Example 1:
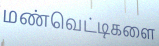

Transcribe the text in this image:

மண்வெட்டிகளை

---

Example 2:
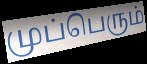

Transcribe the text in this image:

முப்பெரும்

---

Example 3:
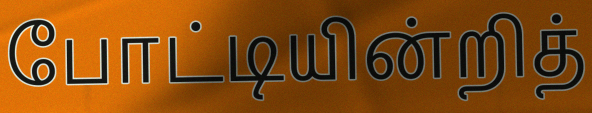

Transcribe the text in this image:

போட்டியின்றித்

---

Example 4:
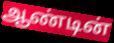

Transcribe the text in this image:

ஆண்டின்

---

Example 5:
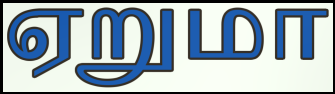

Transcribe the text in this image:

ஏறுமா